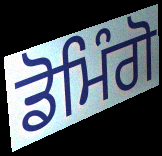
ਡੋਮਿੰਗੋ